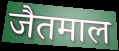
जैतमाल